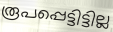
രൂപപ്പെട്ടിട്ടില്ല